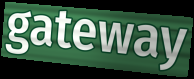
gateway